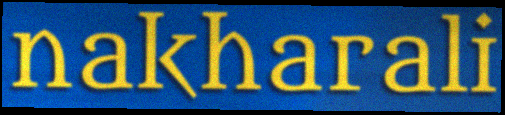
nakharali